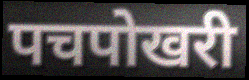
पचपोखरी